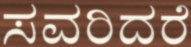
ಸವರಿದರೆ